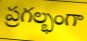
ప్రగల్భంగా